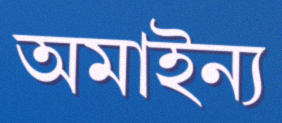
অমাইন্য